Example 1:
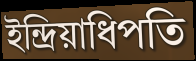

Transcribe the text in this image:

ইন্দ্রিয়াধিপতি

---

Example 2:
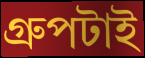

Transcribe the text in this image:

গ্রুপটাই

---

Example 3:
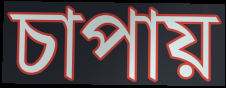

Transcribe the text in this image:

চাপায়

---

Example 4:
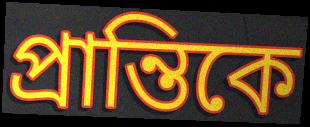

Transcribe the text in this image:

প্রান্তিকে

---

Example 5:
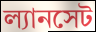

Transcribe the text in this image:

ল্যানসেট